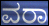
ವರಾ